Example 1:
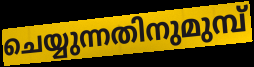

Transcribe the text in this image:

ചെയ്യുന്നതിനുമുമ്പ്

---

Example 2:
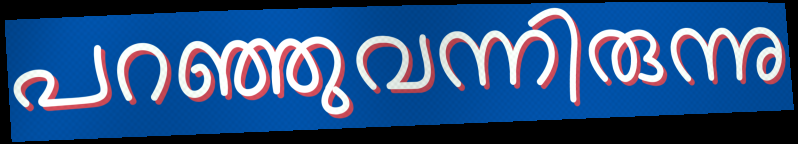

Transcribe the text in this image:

പറഞ്ഞുവന്നിരുന്നു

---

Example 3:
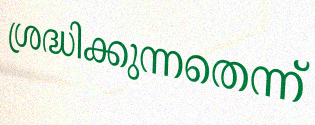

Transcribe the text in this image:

ശ്രദ്ധിക്കുന്നതെന്ന്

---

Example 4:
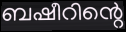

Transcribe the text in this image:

ബഷീറിന്റെ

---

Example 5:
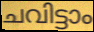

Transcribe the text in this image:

ചവിട്ടാം